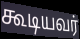
கூடியவர்